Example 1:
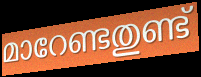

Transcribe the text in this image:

മാറേണ്ടതുണ്ട്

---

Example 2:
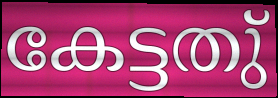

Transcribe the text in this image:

കേട്ടതു്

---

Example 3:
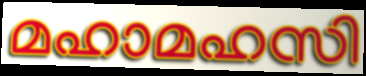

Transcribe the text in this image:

മഹാമഹസി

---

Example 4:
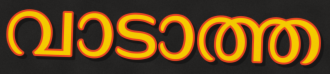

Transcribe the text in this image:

വാടാത്ത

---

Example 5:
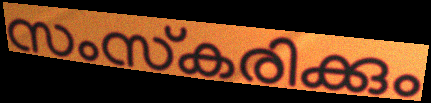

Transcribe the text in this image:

സംസ്‌കരിക്കും